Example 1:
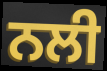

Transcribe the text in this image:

ਨਲੀ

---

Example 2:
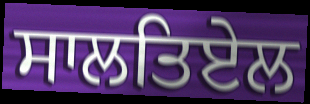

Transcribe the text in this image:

ਸਾਲਤਿਏਲ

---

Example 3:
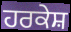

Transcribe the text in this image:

ਹਰਕੇਸ਼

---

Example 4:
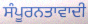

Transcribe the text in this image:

ਸੰਪੂਰਨਤਾਵਾਦੀ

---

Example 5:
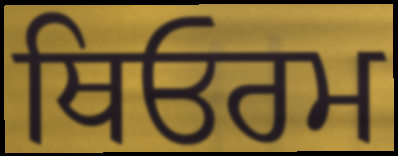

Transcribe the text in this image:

ਥਿਓਰਮ